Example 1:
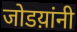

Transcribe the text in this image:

जोडय़ांनी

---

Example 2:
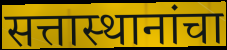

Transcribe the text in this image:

सत्तास्थानांचा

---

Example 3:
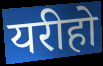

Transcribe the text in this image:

यरीहो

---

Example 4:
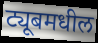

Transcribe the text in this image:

ट्यूबमधील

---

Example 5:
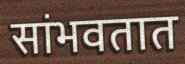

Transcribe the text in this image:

सांभवतात